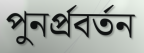
পুনর্প্রবর্তন